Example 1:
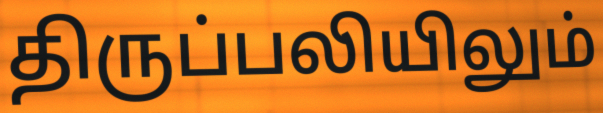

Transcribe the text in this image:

திருப்பலியிலும்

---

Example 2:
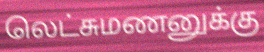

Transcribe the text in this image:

லெட்சுமணனுக்கு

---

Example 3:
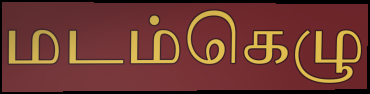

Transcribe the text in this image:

மடம்கெழு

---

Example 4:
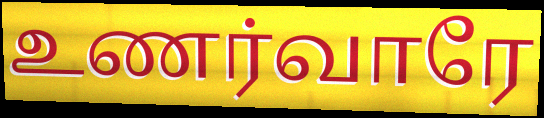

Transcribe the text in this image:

உணர்வாரே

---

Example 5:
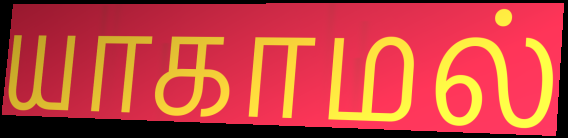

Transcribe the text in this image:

யாகாமல்